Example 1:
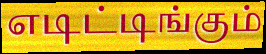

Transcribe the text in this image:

எடிட்டிங்கும்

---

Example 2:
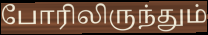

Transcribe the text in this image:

போரிலிருந்தும்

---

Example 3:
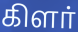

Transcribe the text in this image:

கிளர்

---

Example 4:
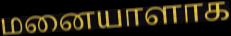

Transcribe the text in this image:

மனையாளாக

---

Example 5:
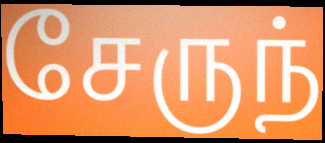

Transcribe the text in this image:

சேருந்